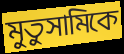
মুতুসামিকে